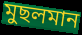
মুছলমান